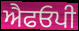
ਐਫਓਪੀ